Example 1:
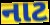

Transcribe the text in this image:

નાટ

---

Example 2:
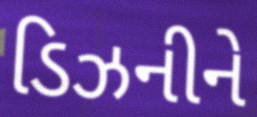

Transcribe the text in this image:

ડિઝનીને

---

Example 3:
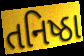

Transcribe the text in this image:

તનિષ્ઠા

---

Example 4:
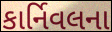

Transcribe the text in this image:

કાર્નિવલના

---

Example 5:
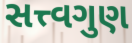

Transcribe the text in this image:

સત્ત્વગુણ